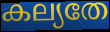
കല്യതേ